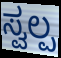
ಸ್ವಲ್ಪ